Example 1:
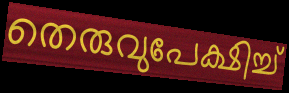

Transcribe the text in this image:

തെരുവുപേക്ഷിച്ച്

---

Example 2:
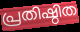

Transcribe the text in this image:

പ്രതിഷ്ഠിത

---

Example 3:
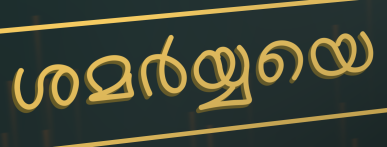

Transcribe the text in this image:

ശമർയ്യയെ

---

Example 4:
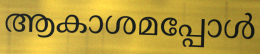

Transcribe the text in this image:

ആകാശമപ്പോൾ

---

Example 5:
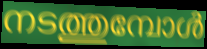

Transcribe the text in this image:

നടത്തുമ്പോൾ